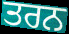
ਤਰਨ